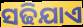
ସଢିଯାଏ